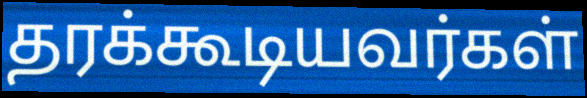
தரக்கூடியவர்கள்